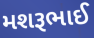
મશરૂભાઈ